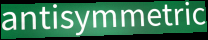
antisymmetric